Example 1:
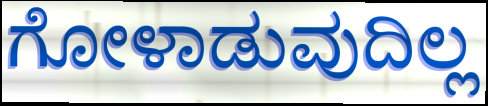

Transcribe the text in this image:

ಗೋಳಾಡುವುದಿಲ್ಲ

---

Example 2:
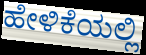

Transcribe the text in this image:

ಹೇಳಿಕೆಯಲ್ಲಿ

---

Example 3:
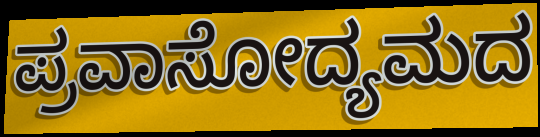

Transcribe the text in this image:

ಪ್ರವಾಸೋದ್ಯಮದ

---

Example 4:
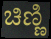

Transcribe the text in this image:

ಚಿಣ್ಣಿ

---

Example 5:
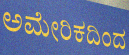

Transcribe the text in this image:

ಅಮೇರಿಕದಿಂದ